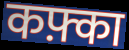
कफ़्का